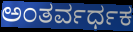
ಅಂತರ್ವರ್ಧಕ